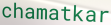
chamatkar